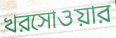
খরসোওয়ার